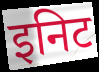
इनिट